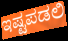
ಇಷ್ಟಪಡಲಿ